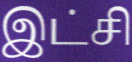
இட்சி